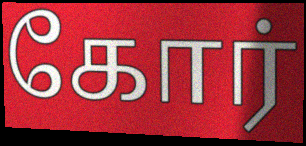
கோர்